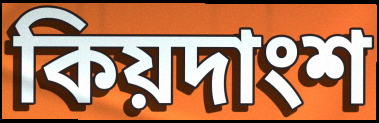
কিয়দাংশ